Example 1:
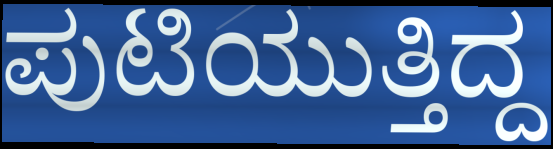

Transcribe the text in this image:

ಪುಟಿಯುತ್ತಿದ್ದ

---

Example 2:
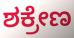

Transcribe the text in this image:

ಶಕ್ರೇಣ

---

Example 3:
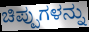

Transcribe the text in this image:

ಚಿಪ್ಪುಗಳನ್ನು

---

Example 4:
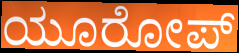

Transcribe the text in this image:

ಯೂರೋಪ್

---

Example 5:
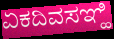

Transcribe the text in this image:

ಏಕದಿವಸಞ್ಹಿ